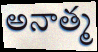
అనాత్మ